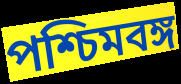
পশ্চিমবঙ্গ